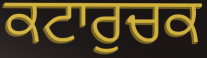
ਕਟਾਰੁਚਕ